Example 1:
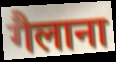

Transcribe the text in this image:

गैलाना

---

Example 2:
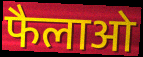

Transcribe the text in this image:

फैलाओ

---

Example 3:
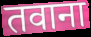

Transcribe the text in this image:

तवाना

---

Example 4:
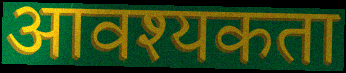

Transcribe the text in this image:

आवश्यकता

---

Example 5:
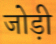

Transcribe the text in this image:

जोड़ी